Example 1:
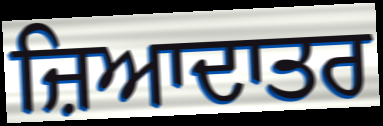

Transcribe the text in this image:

ਜ਼ਿਆਦਾਤਰ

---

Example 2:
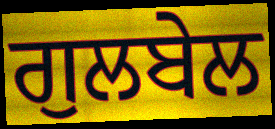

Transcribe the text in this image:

ਗੁਲਬੇਲ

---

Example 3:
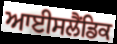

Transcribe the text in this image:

ਆਈਸਲੈਂਡਿਕ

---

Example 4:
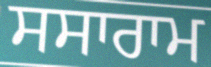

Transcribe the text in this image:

ਸਸਾਰਾਮ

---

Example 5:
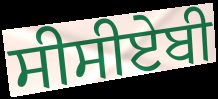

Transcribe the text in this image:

ਸੀਸੀਏਬੀ